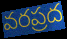
వరప్రద